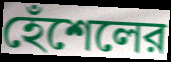
হেঁশেলের